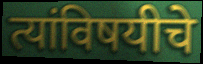
त्यांविषयीचे